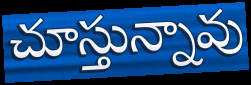
చూస్తున్నావు